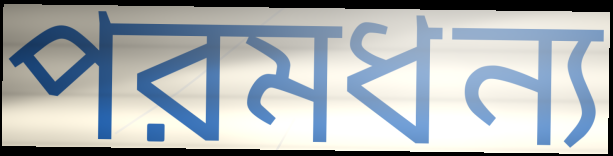
পরমধন্য